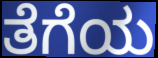
ತೆಗೆಯ